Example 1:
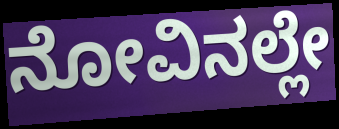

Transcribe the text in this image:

ನೋವಿನಲ್ಲೇ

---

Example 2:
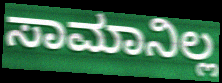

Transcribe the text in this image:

ಸಾಮಾನಿಲ್ಲ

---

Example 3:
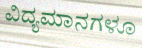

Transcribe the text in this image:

ವಿದ್ಯಮಾನಗಳೂ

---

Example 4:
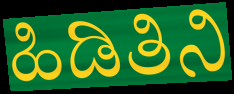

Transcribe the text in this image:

ಹಿಡಿತಿನಿ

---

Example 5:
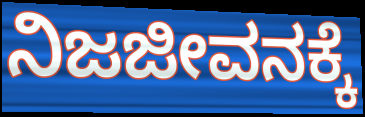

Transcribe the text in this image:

ನಿಜಜೀವನಕ್ಕೆ